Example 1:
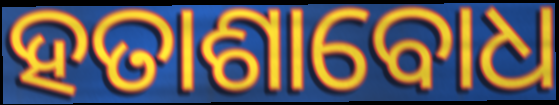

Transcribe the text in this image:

ହତାଶାବୋଧ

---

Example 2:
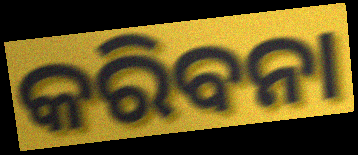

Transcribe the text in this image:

କରିବନା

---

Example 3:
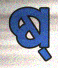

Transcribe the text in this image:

ଷ୍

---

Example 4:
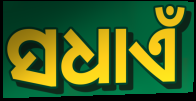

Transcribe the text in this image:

ସଧାଏଁ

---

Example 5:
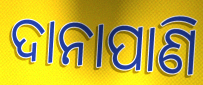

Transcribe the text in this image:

ଦାନାପାଣି